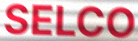
SELCO